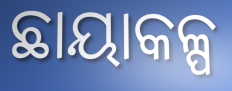
ଛାୟାକଳ୍ପ